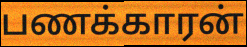
பணக்காரன்